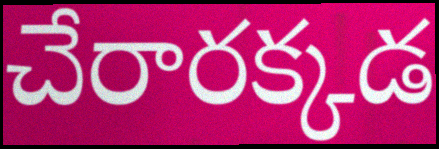
చేరారక్కడ